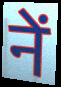
नें